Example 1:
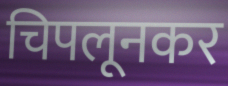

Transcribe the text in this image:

चिपलूनकर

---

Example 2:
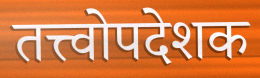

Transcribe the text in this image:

तत्त्वोपदेशक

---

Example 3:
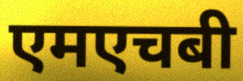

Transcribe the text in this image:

एमएचबी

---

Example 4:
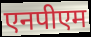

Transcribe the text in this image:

एनपीएम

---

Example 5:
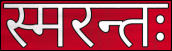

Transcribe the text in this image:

स्मरन्तः